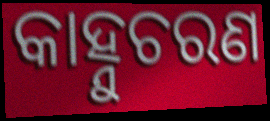
କାହ୍ନୁଚରଣ